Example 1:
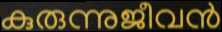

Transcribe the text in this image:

കുരുന്നുജീവൻ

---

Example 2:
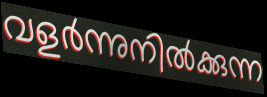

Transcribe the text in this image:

വളർന്നുനിൽക്കുന്ന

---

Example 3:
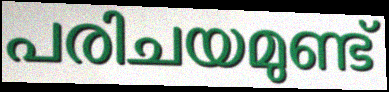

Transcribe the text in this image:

പരിചയമുണ്ട്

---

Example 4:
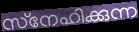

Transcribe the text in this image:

സ്‌നേഹിക്കുന്ന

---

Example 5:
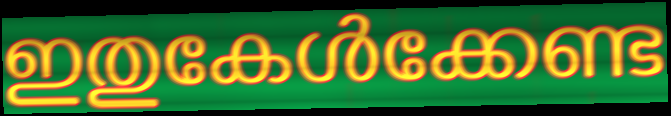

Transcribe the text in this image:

ഇതുകേൾക്കേണ്ട